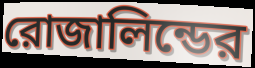
রোজালিন্ডের